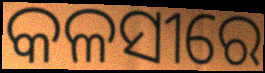
କଳସୀରେ